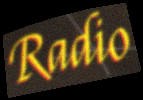
Radio